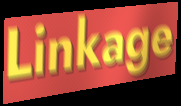
Linkage